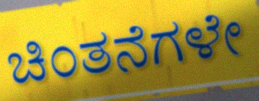
ಚಿಂತನೆಗಳೇ